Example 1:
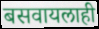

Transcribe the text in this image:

बसवायलाही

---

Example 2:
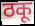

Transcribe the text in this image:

ठकू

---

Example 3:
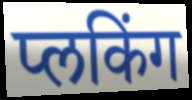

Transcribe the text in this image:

प्लकिंग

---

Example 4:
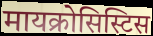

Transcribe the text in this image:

मायक्रोसिस्टिस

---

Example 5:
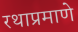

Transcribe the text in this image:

रथाप्रमाणे